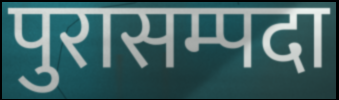
पुरासम्पदा